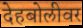
देहबोलीवर